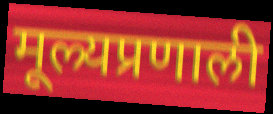
मूल्यप्रणाली